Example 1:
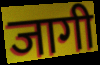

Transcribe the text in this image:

जागी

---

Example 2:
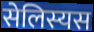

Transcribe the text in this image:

सेलिस्यस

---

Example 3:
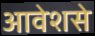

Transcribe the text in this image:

आवेशसे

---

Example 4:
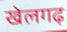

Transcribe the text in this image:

खेलगढ़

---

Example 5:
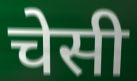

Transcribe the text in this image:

चेसी